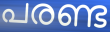
പരണ്ട